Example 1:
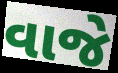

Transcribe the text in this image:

વાજે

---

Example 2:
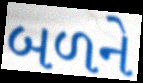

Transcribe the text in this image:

બળને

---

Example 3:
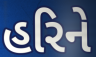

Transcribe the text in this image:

હરિને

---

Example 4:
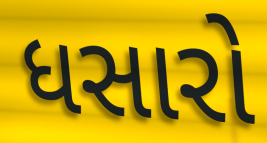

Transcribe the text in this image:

ધસારો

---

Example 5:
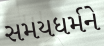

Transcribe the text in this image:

સમયધર્મને